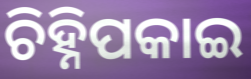
ଚିହ୍ନିପକାଇ